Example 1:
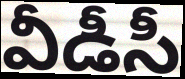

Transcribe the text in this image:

వీడీసీ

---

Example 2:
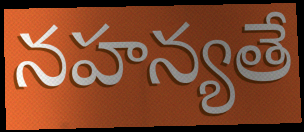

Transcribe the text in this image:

నహన్యతే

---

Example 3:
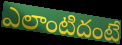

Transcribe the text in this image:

ఎలాంటిదంటే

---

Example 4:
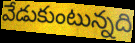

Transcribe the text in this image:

వేడుకుంటున్నది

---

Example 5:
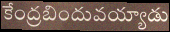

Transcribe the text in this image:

కేంద్రబిందువయ్యాడు